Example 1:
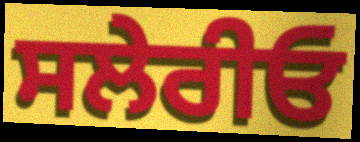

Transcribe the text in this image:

ਸਲੇਰੀਓ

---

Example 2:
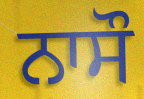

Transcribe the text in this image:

ਨਾਸੌ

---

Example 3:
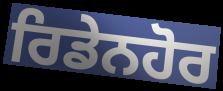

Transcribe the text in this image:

ਰਿਡੇਨਹੋਰ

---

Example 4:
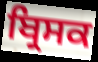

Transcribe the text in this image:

ਬ੍ਰਿਸਕ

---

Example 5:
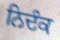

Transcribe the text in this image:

ਨਿਦੰਕ